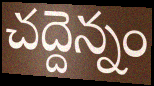
చద్దెన్నం